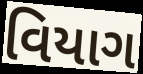
વિયાગ